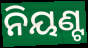
ନିୟଣ୍ଟ